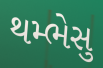
થમ્ભેસુ